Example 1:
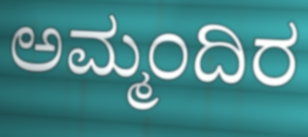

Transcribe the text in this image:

ಅಮ್ಮಂದಿರ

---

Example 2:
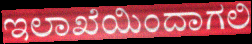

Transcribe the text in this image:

ಇಲಾಖೆಯಿಂದಾಗಲಿ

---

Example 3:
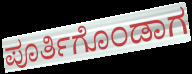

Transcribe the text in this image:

ಪೂರ್ತಿಗೊಂಡಾಗ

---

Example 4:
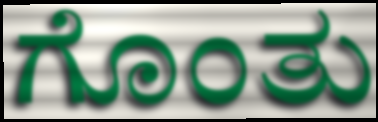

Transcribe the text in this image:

ಗೊಂತು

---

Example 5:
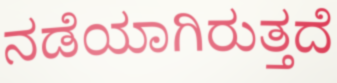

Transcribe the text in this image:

ನಡೆಯಾಗಿರುತ್ತದೆ